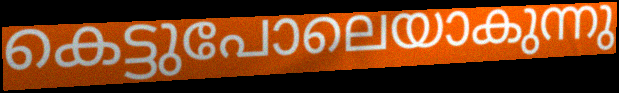
കെട്ടുപോലെയാകുന്നു